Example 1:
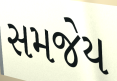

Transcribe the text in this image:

સમજેય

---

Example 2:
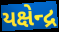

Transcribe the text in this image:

યક્ષેન્દ્ર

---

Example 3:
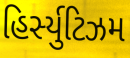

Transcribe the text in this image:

હિર્સ્યુટિઝમ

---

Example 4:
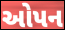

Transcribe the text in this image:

ઓપન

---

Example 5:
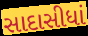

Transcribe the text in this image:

સાદાસીધાં